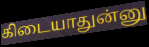
கிடையாதுன்னு